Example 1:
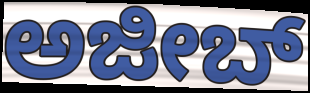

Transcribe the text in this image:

ಅಜೀಬ್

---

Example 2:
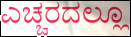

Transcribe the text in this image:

ಎಚ್ಚರದಲ್ಲೂ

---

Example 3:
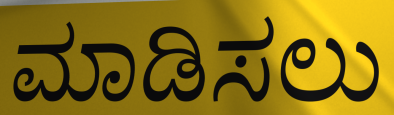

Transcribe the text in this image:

ಮಾಡಿಸಲು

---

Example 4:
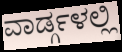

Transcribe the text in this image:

ವಾರ್ಡ್ಗಳಲ್ಲಿ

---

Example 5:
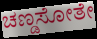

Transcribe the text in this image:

ಚಣ್ಡಸೋತೇ